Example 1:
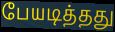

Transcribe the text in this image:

பேயடித்தது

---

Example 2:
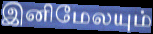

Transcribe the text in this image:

இனிமேலயும்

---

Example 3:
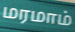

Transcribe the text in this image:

மரமாம்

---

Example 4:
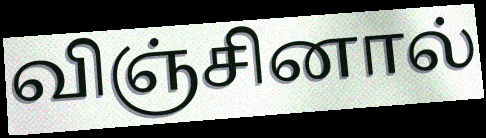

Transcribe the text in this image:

விஞ்சினால்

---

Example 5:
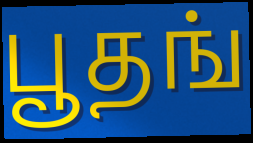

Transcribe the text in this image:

பூதங்